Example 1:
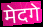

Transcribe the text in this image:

मेदगे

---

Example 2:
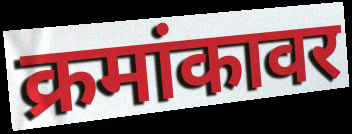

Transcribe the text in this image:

क्रमांकावर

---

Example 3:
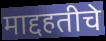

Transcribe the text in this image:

माद्दहतीचे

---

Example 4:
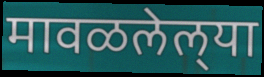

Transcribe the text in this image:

मावळलेल्या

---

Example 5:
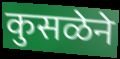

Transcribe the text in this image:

कुसळेने